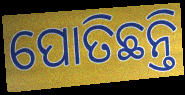
ପୋତିଛନ୍ତି